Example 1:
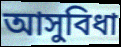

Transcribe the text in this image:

আসুবিধা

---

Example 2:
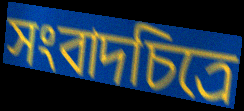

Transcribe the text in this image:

সংবাদচিত্রে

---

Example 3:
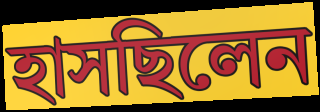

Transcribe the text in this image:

হাসছিলেন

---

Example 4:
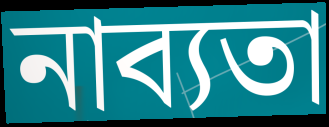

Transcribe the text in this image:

নাব্যতা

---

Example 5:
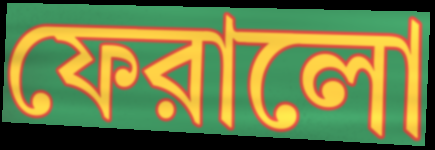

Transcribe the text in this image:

ফেরালো